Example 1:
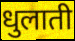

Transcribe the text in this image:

धुलाती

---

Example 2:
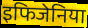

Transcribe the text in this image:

इफिजेनिया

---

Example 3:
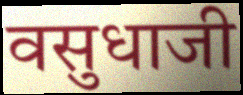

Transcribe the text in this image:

वसुधाजी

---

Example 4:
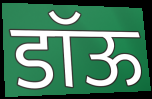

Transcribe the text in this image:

डॉऊ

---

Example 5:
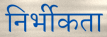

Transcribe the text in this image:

निर्भीकता